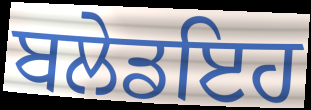
ਬਲੇਡਇਹ